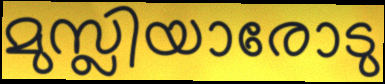
മുസ്ലിയാരോടു